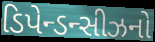
ડિપેન્ડન્સીઝનો